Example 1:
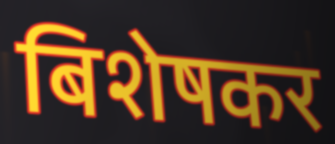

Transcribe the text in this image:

बिशेषकर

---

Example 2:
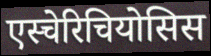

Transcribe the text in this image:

एस्चेरिचियोसिस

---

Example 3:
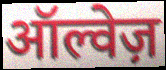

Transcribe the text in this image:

ऑल्वेज़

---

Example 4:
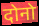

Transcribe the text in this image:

दोनो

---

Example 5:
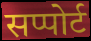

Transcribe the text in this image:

सप्पोर्ट